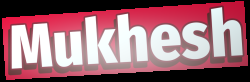
Mukhesh